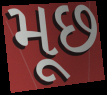
મૂછ